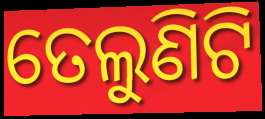
ତେଲୁଣିଟି